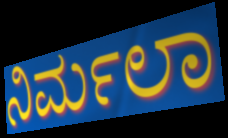
ನಿರ್ಮಲಾ